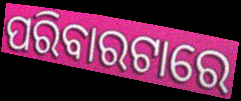
ପରିବାରଟାରେ